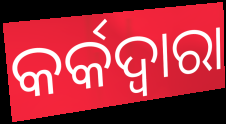
କର୍କଦ୍ଵାରା